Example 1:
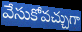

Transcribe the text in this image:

వేసుకోవచ్చుగా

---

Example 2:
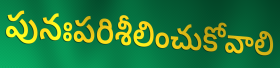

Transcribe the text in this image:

పునఃపరిశీలించుకోవాలి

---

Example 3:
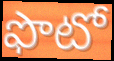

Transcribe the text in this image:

ఫొటో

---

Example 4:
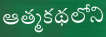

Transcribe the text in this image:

ఆత్మకథలోని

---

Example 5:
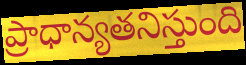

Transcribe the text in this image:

ప్రాధాన్యతనిస్తుంది